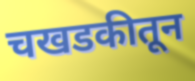
चखडकीतून